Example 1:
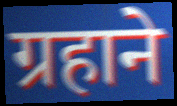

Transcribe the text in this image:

ग्रहाने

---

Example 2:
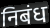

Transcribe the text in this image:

निबंध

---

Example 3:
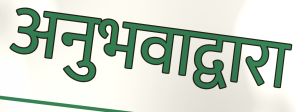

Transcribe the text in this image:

अनुभवाद्वारा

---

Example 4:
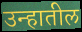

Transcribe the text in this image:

उन्हातील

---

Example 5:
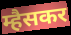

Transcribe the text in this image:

म्हैसकर